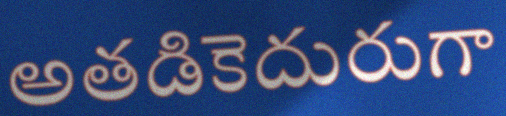
అతడికెదురుగా